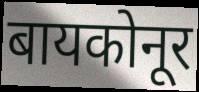
बायकोनूर